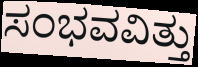
ಸಂಭವವಿತ್ತು